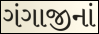
ગંગાજીનાં